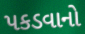
પકડવાનો